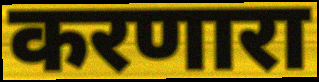
करणारा